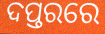
ଦପ୍ତରରେ